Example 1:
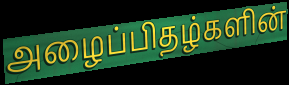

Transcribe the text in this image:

அழைப்பிதழ்களின்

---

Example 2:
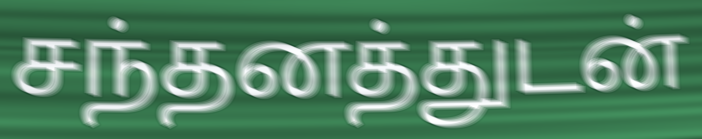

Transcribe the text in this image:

சந்தனத்துடன்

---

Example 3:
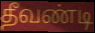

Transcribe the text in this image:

தீவண்டி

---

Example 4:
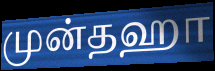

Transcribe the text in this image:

முன்தஹா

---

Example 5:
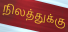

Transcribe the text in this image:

நிலத்துக்கு